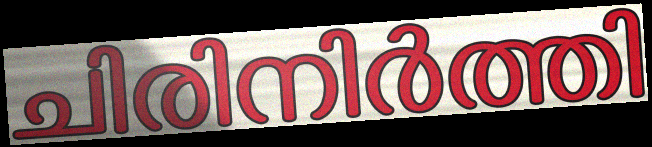
ചിരിനിർത്തി